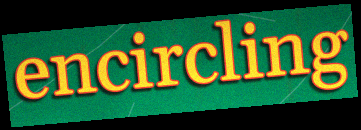
encircling